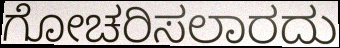
ಗೋಚರಿಸಲಾರದು